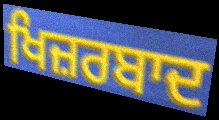
ਖਿਜ਼ਰਬਾਦ